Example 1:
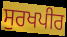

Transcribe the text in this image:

ਸੁਰਖਪੀਰ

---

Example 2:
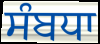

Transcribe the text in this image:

ਸੰਬਧਾ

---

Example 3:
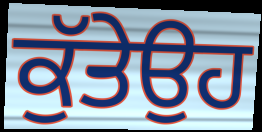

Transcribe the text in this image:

ਕੁੱਤੇਉਹ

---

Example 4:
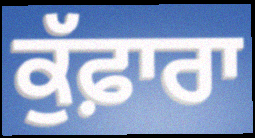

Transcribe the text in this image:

ਕੁੱਫ਼ਾਰਾ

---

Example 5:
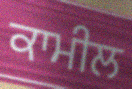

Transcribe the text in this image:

ਕਾਮੀਲ